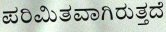
ಪರಿಮಿತವಾಗಿರುತ್ತದೆ